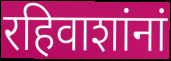
रहिवाशांनां